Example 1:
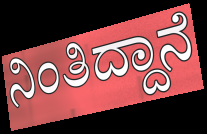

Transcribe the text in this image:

ನಿಂತಿದ್ದಾನೆ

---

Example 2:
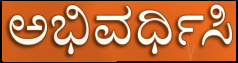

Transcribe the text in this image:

ಅಭಿವರ್ಧಿಸಿ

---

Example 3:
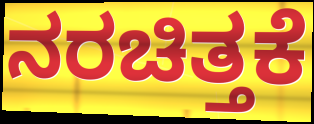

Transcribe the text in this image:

ನರಚಿತ್ತಕೆ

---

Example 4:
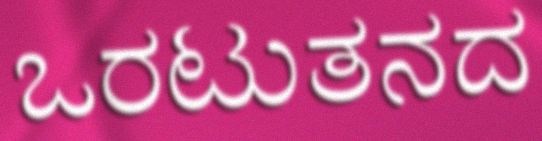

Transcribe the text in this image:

ಒರಟುತನದ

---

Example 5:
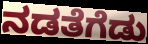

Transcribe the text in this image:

ನಡತೆಗೆಡು